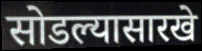
सोडल्यासारखे